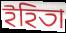
ইহিতা